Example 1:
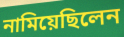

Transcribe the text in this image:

নামিয়েছিলেন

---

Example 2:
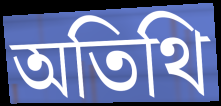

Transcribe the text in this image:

অতিথি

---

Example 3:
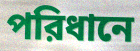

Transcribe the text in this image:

পরিধানে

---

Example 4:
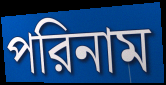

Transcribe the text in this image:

পরিনাম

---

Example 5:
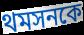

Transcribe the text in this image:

থমসনকে